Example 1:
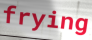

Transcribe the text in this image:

frying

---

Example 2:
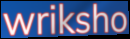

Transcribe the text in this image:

wriksho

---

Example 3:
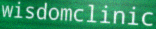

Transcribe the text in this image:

wisdomclinic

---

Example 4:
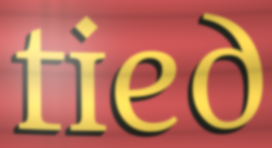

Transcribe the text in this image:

tied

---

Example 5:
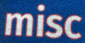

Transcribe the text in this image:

misc